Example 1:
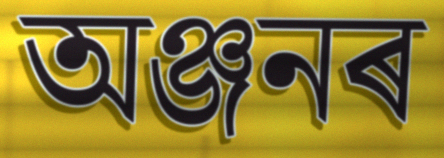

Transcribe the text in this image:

অঞ্জনৰ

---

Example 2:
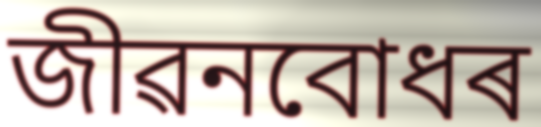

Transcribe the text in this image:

জীৱনবোধৰ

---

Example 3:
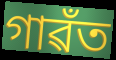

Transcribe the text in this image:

গাৱঁত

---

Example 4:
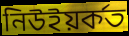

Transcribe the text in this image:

নিউইয়ৰ্কত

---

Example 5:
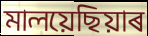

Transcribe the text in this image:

মালয়েছিয়াৰ